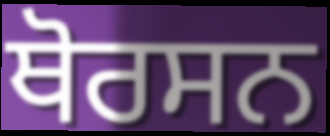
ਥੋਰਸਨ